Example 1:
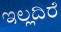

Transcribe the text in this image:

ಇಲ್ಲದಿರೆ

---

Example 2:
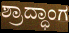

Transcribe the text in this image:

ಶ್ರಾದ್ಧಾಂಗ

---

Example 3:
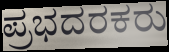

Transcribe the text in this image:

ಪ್ರಭದರಕರು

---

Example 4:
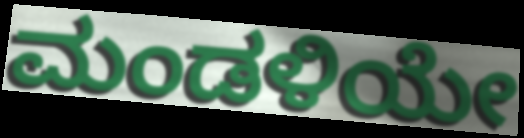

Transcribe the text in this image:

ಮಂಡಳಿಯೇ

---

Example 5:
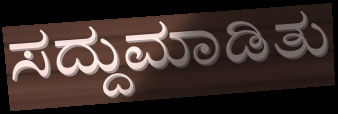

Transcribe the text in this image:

ಸದ್ದುಮಾಡಿತು